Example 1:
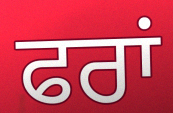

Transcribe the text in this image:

ਫਰਾਂ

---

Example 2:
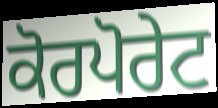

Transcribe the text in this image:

ਕੋਰਪੋਰੇਟ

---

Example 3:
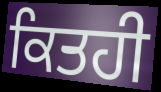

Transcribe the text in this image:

ਕਿਤਹੀ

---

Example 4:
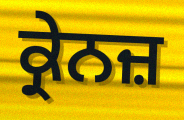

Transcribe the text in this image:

ਕ੍ਰੇਨਜ਼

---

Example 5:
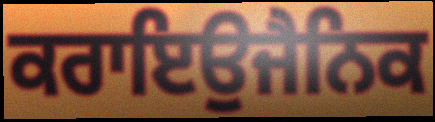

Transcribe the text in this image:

ਕਰਾਇਉਜੈਨਿਕ